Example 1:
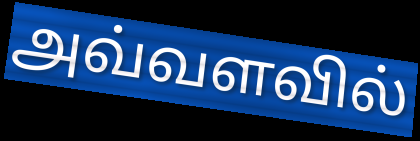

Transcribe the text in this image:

அவ்வளவில்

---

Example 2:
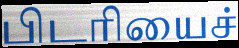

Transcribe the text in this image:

பிடரியைச்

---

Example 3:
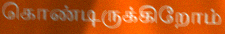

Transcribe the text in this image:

கொண்டிருக்கிறோம்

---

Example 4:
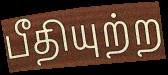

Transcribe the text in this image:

பீதியுற்ற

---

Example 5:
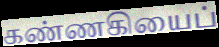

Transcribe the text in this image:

கண்ணகியைப்